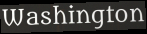
Washington